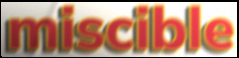
miscible